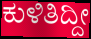
ಕುಳಿತಿದ್ದೀ